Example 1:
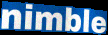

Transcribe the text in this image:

nimble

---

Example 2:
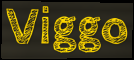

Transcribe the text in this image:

Viggo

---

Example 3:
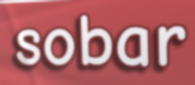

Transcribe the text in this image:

sobar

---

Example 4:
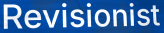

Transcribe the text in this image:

Revisionist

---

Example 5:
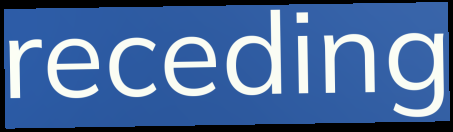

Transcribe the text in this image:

receding